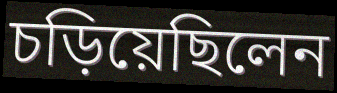
চড়িয়েছিলেন